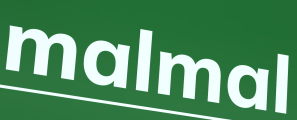
malmal